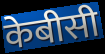
केबीसी